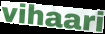
vihaari